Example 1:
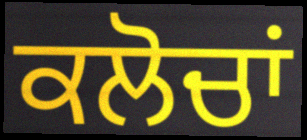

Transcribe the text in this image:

ਕਲੋਚਾਂ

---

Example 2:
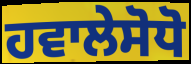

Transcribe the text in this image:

ਹਵਾਲੇਸੋਧੋ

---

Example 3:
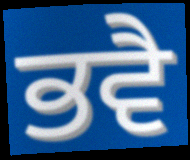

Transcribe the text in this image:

ਭਵੈ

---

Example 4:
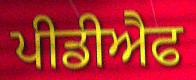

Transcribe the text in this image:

ਪੀਡੀਐਫ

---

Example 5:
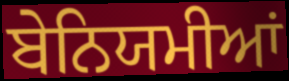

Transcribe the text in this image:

ਬੇਨਿਯਮੀਆਂ